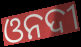
ଓନଦୀ